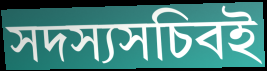
সদস্যসচিবই